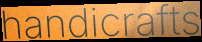
handicrafts